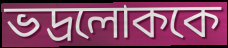
ভদ্রলোককে